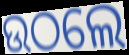
ଉଠଲେ